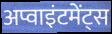
अप्वाइंटमेंट्स